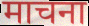
माचना